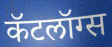
कॅटलॉग्स